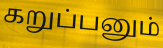
கறுப்பனும்